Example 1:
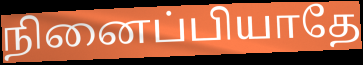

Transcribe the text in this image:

நினைப்பியாதே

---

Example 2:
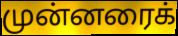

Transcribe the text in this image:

முன்னரைக்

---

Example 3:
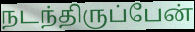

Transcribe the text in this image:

நடந்திருப்பேன்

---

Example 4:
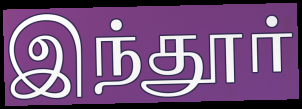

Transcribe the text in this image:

இந்தூர்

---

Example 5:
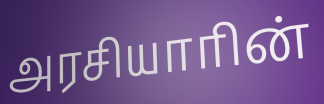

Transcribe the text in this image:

அரசியாரின்